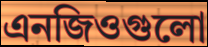
এনজিওগুলো